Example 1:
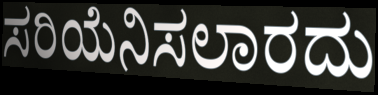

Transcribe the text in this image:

ಸರಿಯೆನಿಸಲಾರದು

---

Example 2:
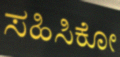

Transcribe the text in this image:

ಸಹಿಸಿಕೋ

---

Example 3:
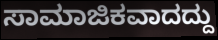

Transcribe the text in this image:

ಸಾಮಾಜಿಕವಾದದ್ದು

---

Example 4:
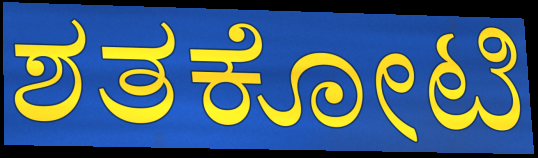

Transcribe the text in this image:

ಶತಕೋಟಿ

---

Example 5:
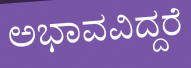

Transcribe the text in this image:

ಅಭಾವವಿದ್ದರೆ